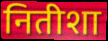
नितीशा